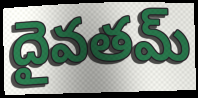
దైవతమ్